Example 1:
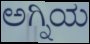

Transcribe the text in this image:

ಅಗ್ನಿಯ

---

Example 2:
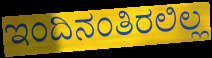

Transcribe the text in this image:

ಇಂದಿನಂತಿರಲಿಲ್ಲ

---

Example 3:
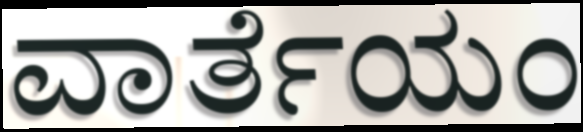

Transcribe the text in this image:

ವಾರ್ತೆಯಂ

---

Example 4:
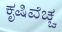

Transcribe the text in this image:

ಕೃಷಿವೆಚ್ಚ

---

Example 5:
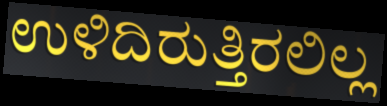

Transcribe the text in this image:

ಉಳಿದಿರುತ್ತಿರಲಿಲ್ಲ